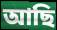
আছি